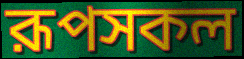
রূপসকল